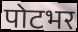
पोटभर